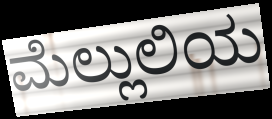
ಮೆಲ್ಲುಲಿಯ